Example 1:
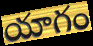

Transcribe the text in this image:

యాగం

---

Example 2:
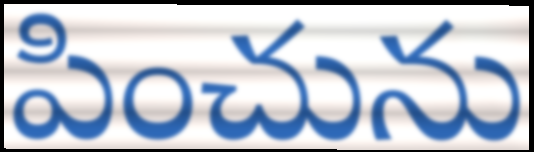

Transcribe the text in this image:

పించును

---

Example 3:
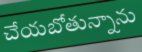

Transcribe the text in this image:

చేయబోతున్నాను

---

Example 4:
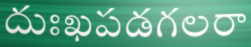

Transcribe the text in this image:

దుఃఖపడగలరా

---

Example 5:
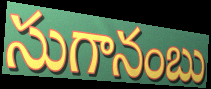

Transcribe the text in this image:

సుగానంబు